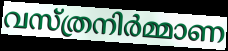
വസ്ത്രനിർമ്മാണ